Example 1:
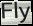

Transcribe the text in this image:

Fly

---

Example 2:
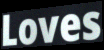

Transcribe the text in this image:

Loves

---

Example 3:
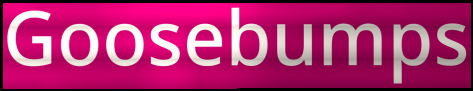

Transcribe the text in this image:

Goosebumps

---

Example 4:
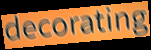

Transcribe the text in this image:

decorating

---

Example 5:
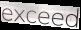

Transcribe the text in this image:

exceed